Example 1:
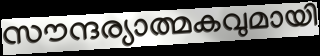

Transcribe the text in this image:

സൗന്ദര്യാത്മകവുമായി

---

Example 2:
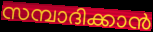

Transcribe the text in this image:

സമ്പാദിക്കാൻ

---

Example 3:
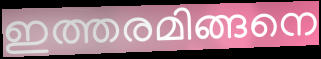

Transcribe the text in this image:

ഇത്തരമിങ്ങനെ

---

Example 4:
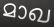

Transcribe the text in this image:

മാഖ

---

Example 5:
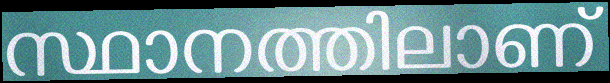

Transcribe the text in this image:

സ്ഥാനത്തിലാണ്